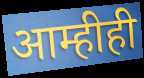
आम्हीही